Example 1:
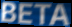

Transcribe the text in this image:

BETA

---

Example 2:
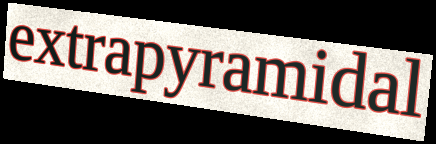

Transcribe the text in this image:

extrapyramidal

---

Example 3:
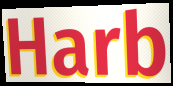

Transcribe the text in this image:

Harb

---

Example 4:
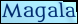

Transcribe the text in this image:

Magala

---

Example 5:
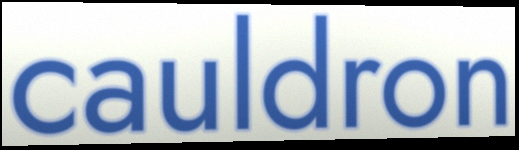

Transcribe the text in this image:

cauldron